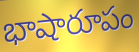
భాషారూపం